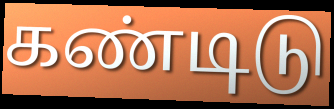
கண்டிடு